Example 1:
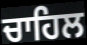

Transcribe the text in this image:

ਚਾਹਿਲ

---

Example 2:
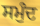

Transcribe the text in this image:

ਸਮੁੰਦ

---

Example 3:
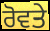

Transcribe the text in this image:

ਰੋਵਤੇ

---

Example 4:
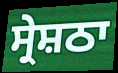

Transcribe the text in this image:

ਸ੍ਰੇਸ਼ਠਾ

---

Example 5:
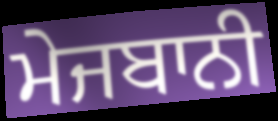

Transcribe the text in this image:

ਮੇਜਬਾਨੀ